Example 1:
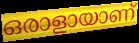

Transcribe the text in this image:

ഒരാളായാണ്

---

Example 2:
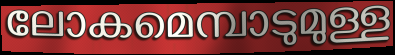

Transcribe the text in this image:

ലോകമെമ്പാടുമുള്ള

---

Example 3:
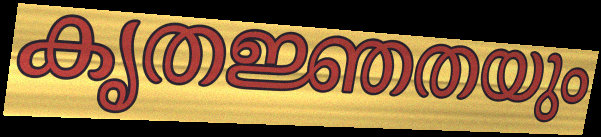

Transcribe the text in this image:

കൃതജ്ഞതയും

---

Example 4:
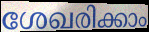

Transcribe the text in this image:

ശേഖരിക്കാം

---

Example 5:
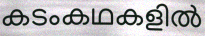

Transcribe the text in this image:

കടംകഥകളിൽ